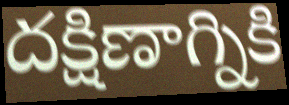
దక్షిణాగ్నికి